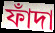
ফাঁদা